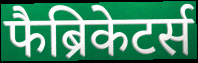
फैब्रिकेटर्स